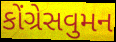
કોંગ્રેસવુમન